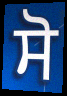
ਸੋ